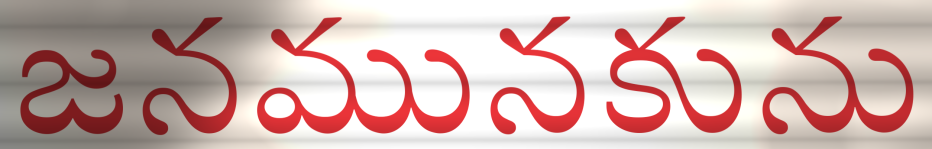
జనమునకును